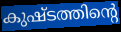
കുഷ്ടത്തിന്റെ